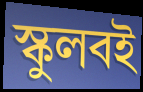
স্কুলবই